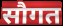
सौगत